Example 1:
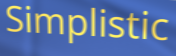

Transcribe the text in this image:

Simplistic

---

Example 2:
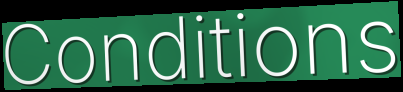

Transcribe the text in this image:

Conditions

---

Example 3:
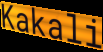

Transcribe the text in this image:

Kakali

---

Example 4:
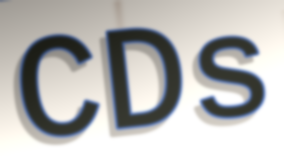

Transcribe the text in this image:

CDs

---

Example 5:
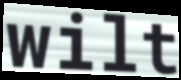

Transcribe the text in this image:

wilt